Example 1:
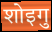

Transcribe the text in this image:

शोइगु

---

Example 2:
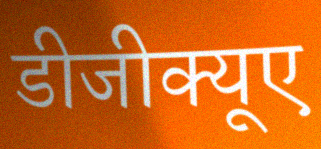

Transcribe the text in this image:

डीजीक्यूए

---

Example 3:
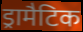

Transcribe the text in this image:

ड्रामैटिक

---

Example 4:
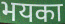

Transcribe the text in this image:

भयका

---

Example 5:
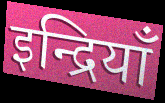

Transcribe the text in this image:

इन्द्रियाँ